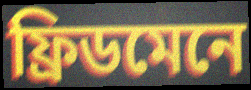
ফ্ৰিডমেনে